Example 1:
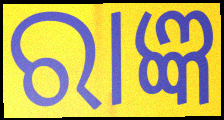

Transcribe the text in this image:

ରାଜ୍ଞ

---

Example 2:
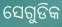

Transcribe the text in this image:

ସେଗୁଡିକ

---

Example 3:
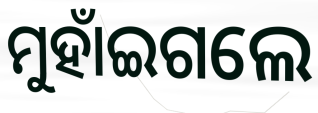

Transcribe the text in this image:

ମୁହାଁଇଗଲେ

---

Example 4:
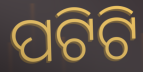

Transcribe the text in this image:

ପଟିଟି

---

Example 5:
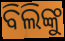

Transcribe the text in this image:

ବିଲିଙ୍କୁ